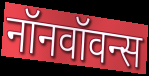
नॉनवॉवन्स